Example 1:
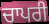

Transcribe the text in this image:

ਚਾਪਰੀ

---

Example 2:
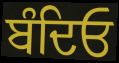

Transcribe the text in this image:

ਬੰਦਿਓ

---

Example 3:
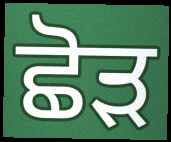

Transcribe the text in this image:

ਛੋੜ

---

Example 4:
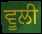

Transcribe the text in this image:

ਵੂਲੀ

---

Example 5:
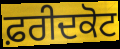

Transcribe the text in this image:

ਫ਼ਰੀਦਕੋਟ